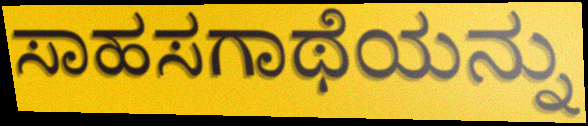
ಸಾಹಸಗಾಥೆಯನ್ನು